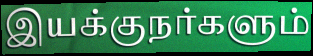
இயக்குநர்களும்